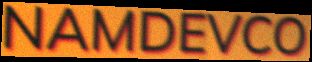
NAMDEVCO